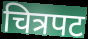
चित्रपट